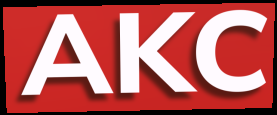
AKC